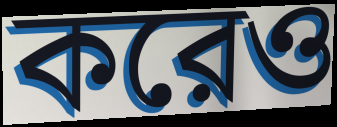
করেও